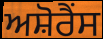
ਅਸ਼ੋਰੈਂਸ